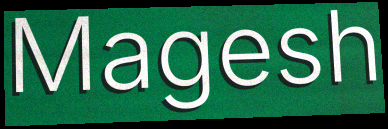
Magesh